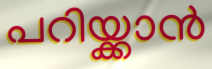
പറിയ്ക്കാൻ